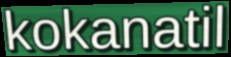
kokanatil